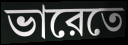
ভারেতে